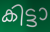
കിട്ടാ